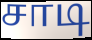
சாடி